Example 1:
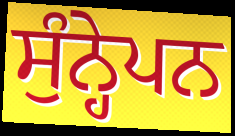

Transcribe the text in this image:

ਸੁੰਨ੍ਹੇਪਨ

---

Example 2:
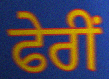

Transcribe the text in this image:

ਫੇਰੀਂ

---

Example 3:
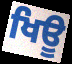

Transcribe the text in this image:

ਖਿਊ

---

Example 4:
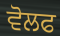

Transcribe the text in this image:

ਵੋਲਫ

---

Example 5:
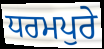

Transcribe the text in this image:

ਧਰਮਪੁਰੇ